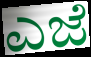
ಎಜೆ